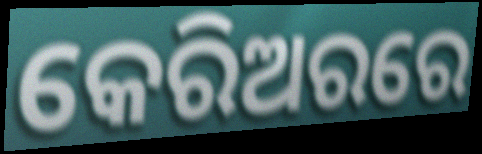
କେରିଅରରେ